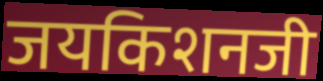
जयकिशनजी